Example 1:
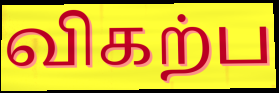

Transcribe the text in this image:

விகற்ப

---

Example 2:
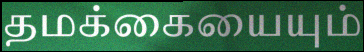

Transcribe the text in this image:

தமக்கையையும்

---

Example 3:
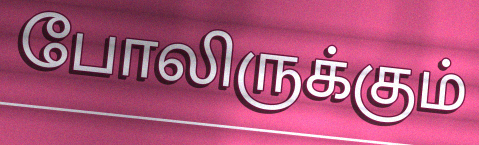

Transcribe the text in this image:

போலிருக்கும்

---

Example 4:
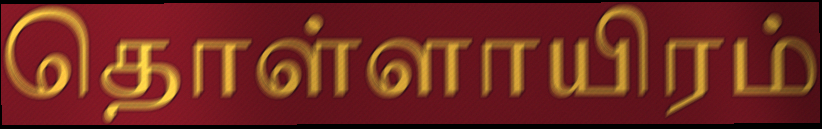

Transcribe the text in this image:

தொள்ளாயிரம்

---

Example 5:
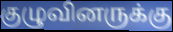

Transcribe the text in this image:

குழுவினருக்கு